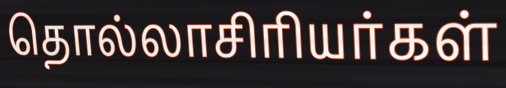
தொல்லாசிரியர்கள்